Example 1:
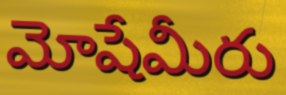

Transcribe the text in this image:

మోషేమీరు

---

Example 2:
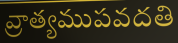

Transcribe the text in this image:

వ్రాత్యముపవదతి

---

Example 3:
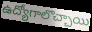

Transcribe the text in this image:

ఉద్యోగాలొచ్చాయి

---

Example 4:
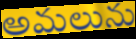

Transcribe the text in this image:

అమలును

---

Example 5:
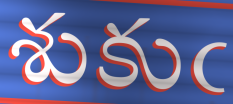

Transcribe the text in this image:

శుకుఁ